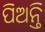
ପିଅନ୍ତି